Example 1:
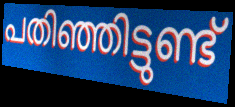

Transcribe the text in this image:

പതിഞ്ഞിട്ടുണ്ട്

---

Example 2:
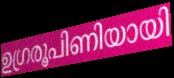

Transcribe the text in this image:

ഉഗ്രരൂപിണിയായി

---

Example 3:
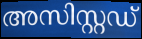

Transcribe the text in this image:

അസിസ്റ്റഡ്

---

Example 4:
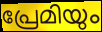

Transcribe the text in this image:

പ്രേമിയും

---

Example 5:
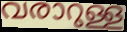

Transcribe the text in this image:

വരാറുള്ള